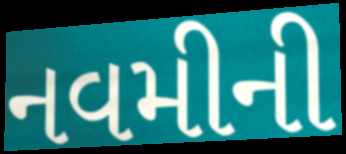
નવમીની